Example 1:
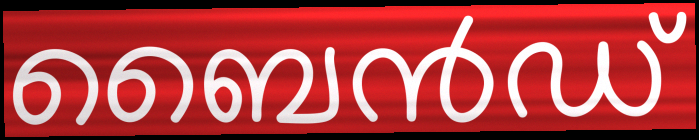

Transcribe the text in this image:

ബൈൻഡ്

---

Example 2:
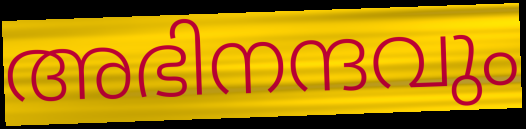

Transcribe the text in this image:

അഭിനന്ദവും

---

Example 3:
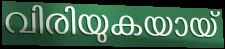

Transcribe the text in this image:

വിരിയുകയായ്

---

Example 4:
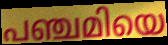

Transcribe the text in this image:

പഞ്ചമിയെ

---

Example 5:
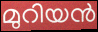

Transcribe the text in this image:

മുറിയൻ